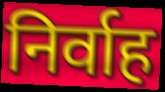
निर्वाह